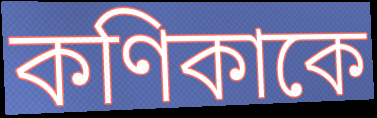
কণিকাকে